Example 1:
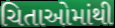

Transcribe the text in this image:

ચિતાઓમાંથી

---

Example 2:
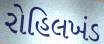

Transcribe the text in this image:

રોહિલખંડ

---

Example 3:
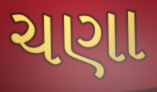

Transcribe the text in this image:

ચણા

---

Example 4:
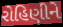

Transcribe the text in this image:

રોહિણીને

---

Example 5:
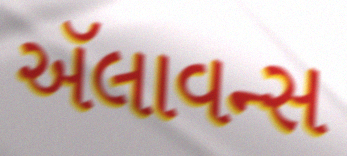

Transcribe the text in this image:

ઍલાવન્સ